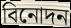
বিনোদন